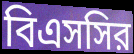
বিএসসির